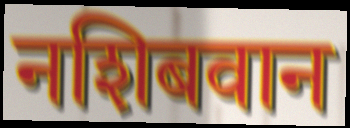
नशिबवान